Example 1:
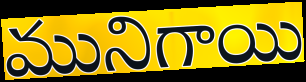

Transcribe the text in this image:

మునిగాయి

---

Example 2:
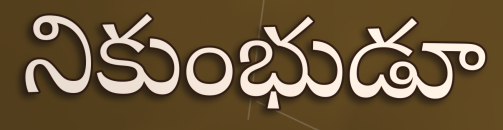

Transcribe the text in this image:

నికుంభుడూ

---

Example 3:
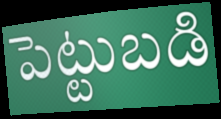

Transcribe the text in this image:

పెట్టుబడి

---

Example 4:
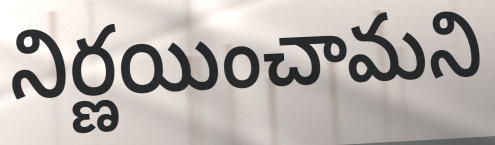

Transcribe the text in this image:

నిర్ణయించామని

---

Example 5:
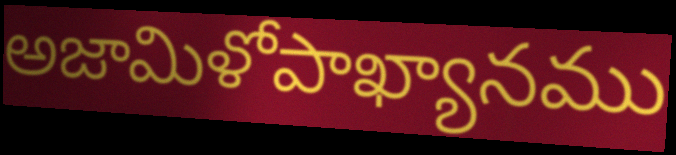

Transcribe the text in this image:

అజామిళోపాఖ్యానము